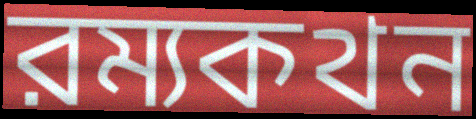
রম্যকথন